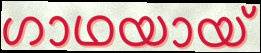
ഗാഥയായ്